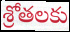
శ్రోతలకు